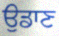
ਉਡਾਣ